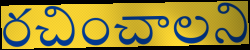
రచించాలని